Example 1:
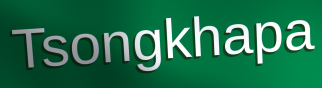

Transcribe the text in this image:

Tsongkhapa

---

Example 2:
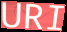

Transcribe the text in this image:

URI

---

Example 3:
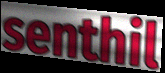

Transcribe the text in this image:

senthil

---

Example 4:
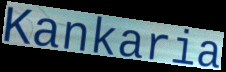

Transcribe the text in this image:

Kankaria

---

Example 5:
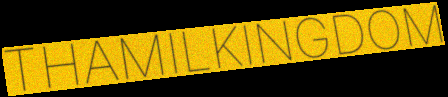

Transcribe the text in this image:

THAMILKINGDOM